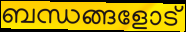
ബന്ധങ്ങളോട്